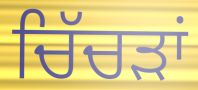
ਚਿੱਚੜਾਂ